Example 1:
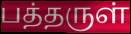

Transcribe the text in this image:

பத்தருள்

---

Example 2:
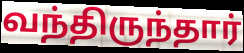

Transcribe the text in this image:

வந்திருந்தார்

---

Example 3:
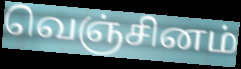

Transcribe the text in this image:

வெஞ்சினம்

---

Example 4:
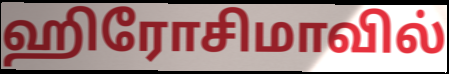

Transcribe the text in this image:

ஹிரோசிமாவில்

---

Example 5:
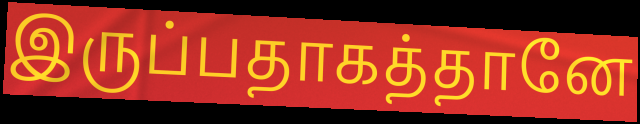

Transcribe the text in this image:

இருப்பதாகத்தானே